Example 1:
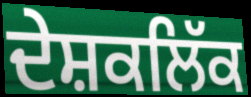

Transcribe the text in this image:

ਦੇਸ਼ਕਲਿੱਕ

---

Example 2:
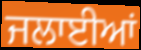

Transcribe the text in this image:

ਜਲਾਈਆਂ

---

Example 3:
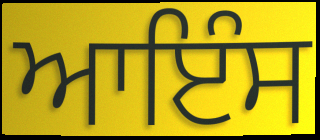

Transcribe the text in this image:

ਆਇੰਸ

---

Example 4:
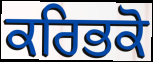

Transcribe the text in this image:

ਕਰਿਭਕੋ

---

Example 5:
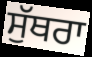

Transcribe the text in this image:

ਸੁੱਥਰਾ